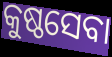
କୁଷ୍ଠସେବା